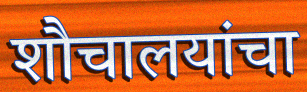
शौचालयांचा